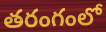
తరంగంలో